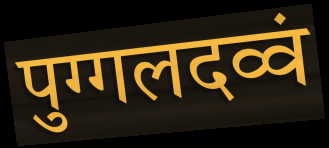
पुग्गलदव्वं